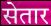
सेतार